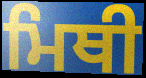
ਮਿਥੀ